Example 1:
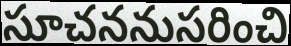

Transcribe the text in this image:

సూచననుసరించి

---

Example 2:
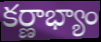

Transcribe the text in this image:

కర్ణాభ్యాం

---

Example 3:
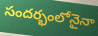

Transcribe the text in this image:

సందర్భంలోనైనా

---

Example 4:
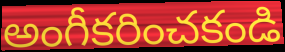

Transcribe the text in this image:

అంగీకరించకండి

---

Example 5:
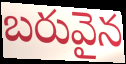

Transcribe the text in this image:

బరువైన